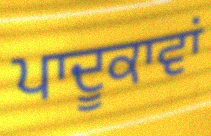
ਪਾਦੂਕਾਵਾਂ